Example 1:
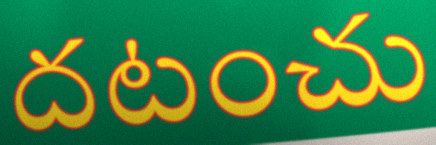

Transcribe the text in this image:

దటంచు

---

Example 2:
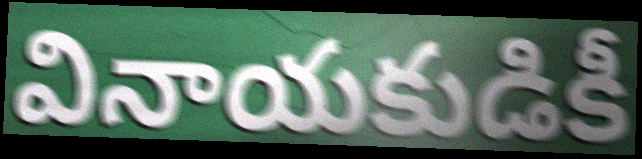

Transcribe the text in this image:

వినాయకుడికీ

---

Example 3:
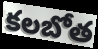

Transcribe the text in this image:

కలబోత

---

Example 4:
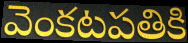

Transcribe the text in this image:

వెంకటపతికి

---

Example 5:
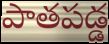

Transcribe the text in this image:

పాతపడ్డ